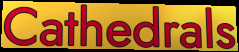
Cathedrals